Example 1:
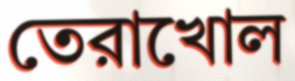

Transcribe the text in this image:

তেরাখোল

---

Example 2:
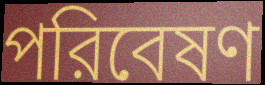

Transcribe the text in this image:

পরিবেষণ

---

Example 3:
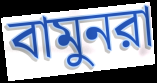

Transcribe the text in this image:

বামুনরা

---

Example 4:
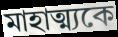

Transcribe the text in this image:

মাহাত্ম্যকে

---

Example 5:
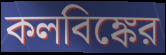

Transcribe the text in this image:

কলবিঙ্কের